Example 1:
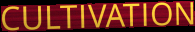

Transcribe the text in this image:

CULTIVATION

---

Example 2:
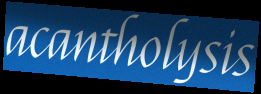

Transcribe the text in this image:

acantholysis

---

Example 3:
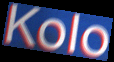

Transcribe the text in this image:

Kolo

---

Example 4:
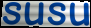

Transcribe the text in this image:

susu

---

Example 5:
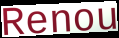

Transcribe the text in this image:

Renou